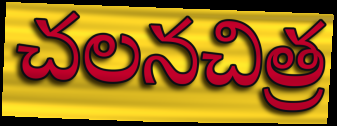
చలనచిత్ర